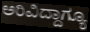
ಅರಿವಿದ್ದಾಗ್ಯೂ